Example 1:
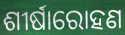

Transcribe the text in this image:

ଶୀର୍ଷାରୋହଣ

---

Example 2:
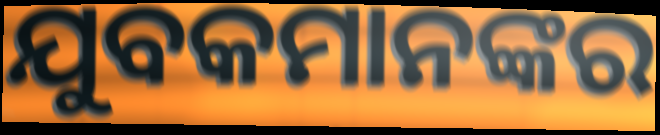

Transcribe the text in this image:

ଯୁବକମାନଙ୍କର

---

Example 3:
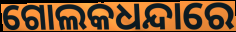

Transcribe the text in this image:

ଗୋଲକଧନ୍ଦାରେ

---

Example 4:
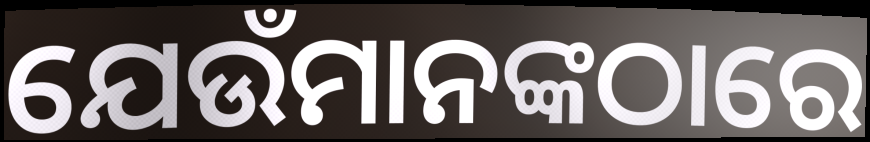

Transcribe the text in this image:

ଯେଉଁମାନଙ୍କଠାରେ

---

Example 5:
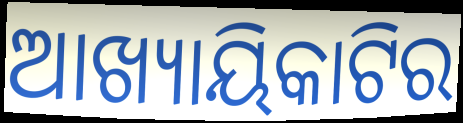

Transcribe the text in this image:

ଆଖ୍ୟାୟିକାଟିର